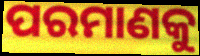
ପରମାଣକୁ